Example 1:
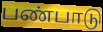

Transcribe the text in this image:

பண்பாடு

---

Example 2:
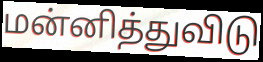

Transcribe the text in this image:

மன்னித்துவிடு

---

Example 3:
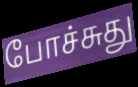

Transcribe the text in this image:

போச்சுது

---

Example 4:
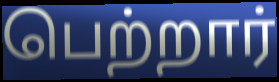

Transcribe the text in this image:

பெற்றார்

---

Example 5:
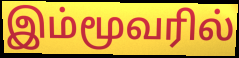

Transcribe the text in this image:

இம்மூவரில்